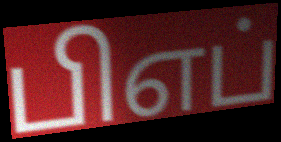
பிஎப்